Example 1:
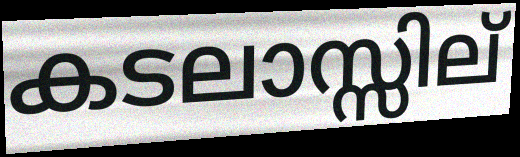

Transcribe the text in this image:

കടലാസ്സില്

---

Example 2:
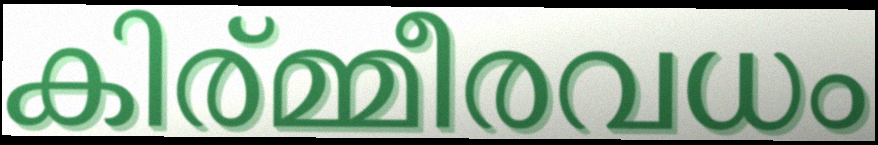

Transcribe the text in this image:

കിര്മ്മീരവധം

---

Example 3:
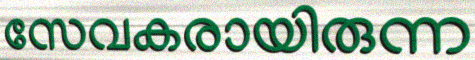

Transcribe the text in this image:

സേവകരായിരുന്ന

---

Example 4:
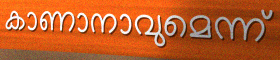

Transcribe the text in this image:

കാണാനാവുമെന്ന്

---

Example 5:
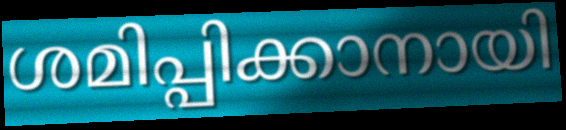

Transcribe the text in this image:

ശമിപ്പിക്കാനായി